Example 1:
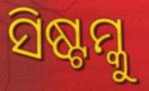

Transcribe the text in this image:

ସିଷ୍ଟମ୍କୁ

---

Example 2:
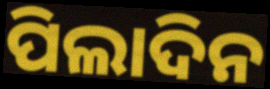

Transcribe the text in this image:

ପିଲାଦିନ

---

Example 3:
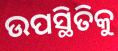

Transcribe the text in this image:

ଉପସ୍ଥିତିକୁ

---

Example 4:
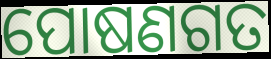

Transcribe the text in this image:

ପୋଷଣଗତ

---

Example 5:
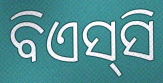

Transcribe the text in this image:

ବିଏସ୍‌ସି